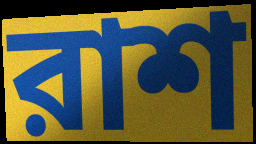
রাশ